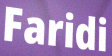
Faridi